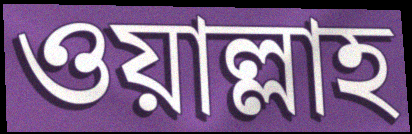
ওয়াল্লাহ